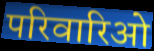
परिवारिओ